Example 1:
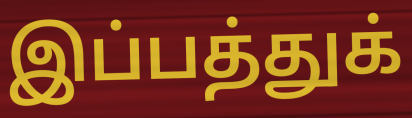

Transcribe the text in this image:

இப்பத்துக்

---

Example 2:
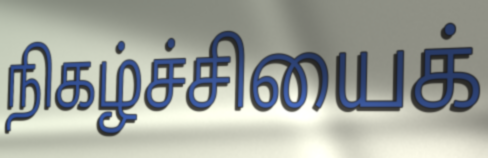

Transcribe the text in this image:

நிகழ்ச்சியைக்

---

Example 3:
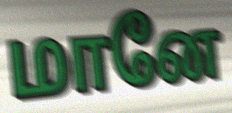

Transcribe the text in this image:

மானே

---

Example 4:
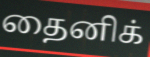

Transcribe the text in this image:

தைனிக்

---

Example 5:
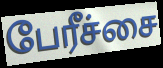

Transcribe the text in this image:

பேரீச்சை